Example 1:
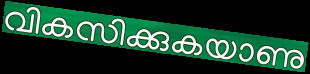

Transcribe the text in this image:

വികസിക്കുകയാണു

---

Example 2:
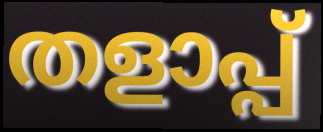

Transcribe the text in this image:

തളാപ്പ്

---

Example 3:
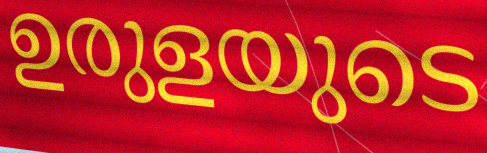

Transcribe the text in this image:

ഉരുളയുടെ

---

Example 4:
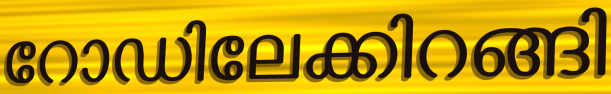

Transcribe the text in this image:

റോഡിലേക്കിറങ്ങി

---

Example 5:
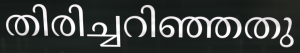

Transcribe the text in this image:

തിരിച്ചറിഞ്ഞതു